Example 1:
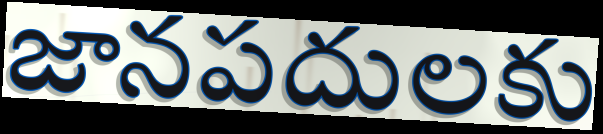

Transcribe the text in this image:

జానపదులకు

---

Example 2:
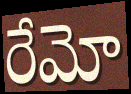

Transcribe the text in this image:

రేమో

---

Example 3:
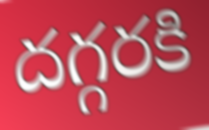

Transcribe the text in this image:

దగ్గరకి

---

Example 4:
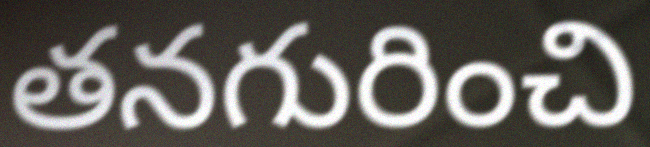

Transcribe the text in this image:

తనగురించి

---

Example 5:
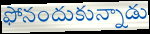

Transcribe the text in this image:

ఫోనందుకున్నాడు